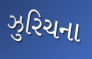
ઝુરિચના